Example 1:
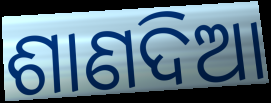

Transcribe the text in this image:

ଶାଣଦିଆ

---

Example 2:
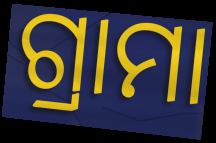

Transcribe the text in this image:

ଗ୍ରାମା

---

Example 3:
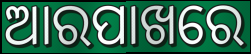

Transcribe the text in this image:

ଆରପାଖରେ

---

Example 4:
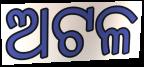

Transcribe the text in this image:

ଅଟଳ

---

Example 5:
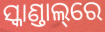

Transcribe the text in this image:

ସ୍କାଣ୍ଡାଲ୍‌ରେ